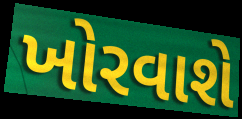
ખોરવાશે